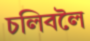
চলিবলৈ